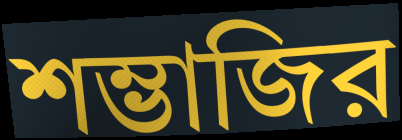
শম্ভাজির